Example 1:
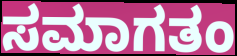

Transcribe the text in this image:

ಸಮಾಗತಂ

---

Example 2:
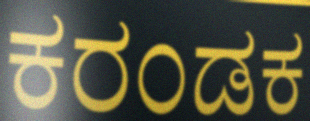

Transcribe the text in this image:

ಕರಂಡಕ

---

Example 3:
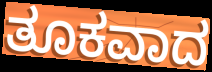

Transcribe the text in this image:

ತೂಕವಾದ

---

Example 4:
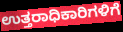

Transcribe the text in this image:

ಉತ್ತರಾಧಿಕಾರಿಗಳಿಗೆ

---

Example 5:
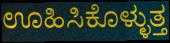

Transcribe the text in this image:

ಊಹಿಸಿಕೊಳ್ಳುತ್ತ